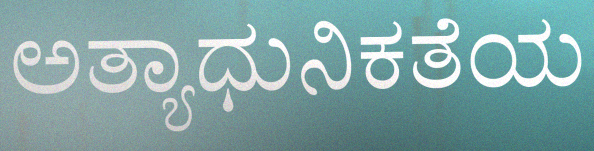
ಅತ್ಯಾಧುನಿಕತೆಯ